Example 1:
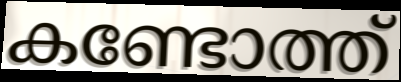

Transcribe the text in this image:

കണ്ടോത്ത്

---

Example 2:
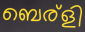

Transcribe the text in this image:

ബെര്ളി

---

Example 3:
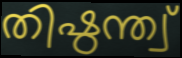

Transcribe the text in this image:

തിഷ്ഠന്ത്വ്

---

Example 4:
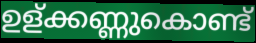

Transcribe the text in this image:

ഉള്ക്കണ്ണുകൊണ്ട്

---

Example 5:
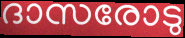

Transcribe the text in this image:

ദാസരോടു